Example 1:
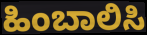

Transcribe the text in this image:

ಹಿಂಬಾಲಿಸಿ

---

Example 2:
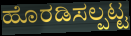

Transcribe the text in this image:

ಹೊರಡಿಸಲ್ಪಟ್ಟ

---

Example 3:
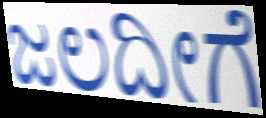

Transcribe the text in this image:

ಜಲದೀಗೆ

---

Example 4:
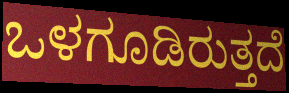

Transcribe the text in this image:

ಒಳಗೂಡಿರುತ್ತದೆ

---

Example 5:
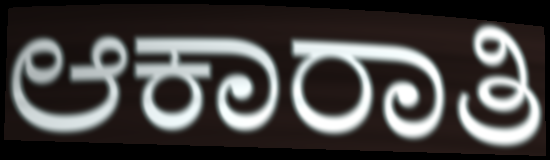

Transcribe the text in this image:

ಆಕಾರಾತಿ